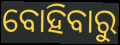
ବୋହିବାରୁ